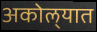
अकोल्यात